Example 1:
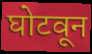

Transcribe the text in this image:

घोटवून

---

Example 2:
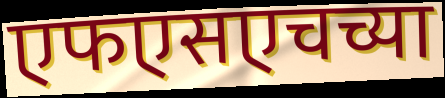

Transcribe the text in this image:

एफएसएचच्या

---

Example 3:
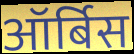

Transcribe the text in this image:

ऑर्बिस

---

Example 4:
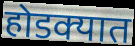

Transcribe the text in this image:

होडक्यात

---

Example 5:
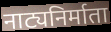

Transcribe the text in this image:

नाट्यनिर्माता